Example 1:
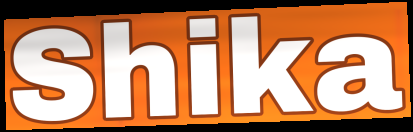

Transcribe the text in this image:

Shika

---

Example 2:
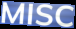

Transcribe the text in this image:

MISC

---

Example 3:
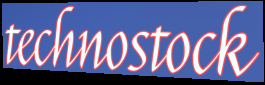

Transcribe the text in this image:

technostock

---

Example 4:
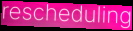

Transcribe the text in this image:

rescheduling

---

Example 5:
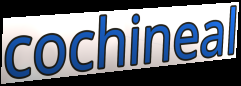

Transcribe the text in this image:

cochineal